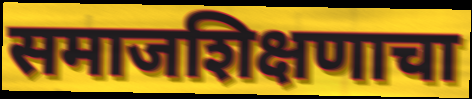
समाजशिक्षणाचा